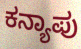
ಕನ್ಯಾಪು